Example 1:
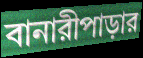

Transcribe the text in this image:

বানারীপাড়ার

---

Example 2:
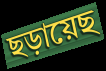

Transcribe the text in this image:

ছড়ায়েছ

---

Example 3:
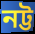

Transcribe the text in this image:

নট্ট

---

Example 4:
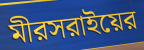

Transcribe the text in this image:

মীরসরাইয়ের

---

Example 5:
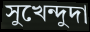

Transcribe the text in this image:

সুখেন্দুদা